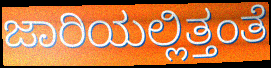
ಜಾರಿಯಲ್ಲಿತ್ತಂತೆ